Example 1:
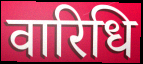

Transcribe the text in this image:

वारिधि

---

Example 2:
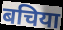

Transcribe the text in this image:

बचिया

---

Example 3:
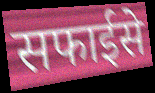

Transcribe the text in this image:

सफाईसे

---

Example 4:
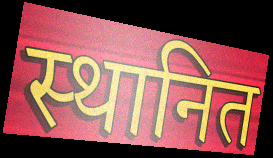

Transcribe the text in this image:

स्थानित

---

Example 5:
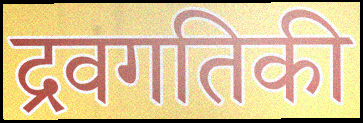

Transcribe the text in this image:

द्रवगतिकी